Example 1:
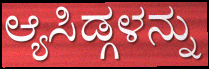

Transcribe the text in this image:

ಆ್ಯಸಿಡ್ಗಳನ್ನು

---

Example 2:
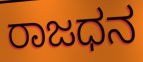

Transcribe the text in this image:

ರಾಜಧನ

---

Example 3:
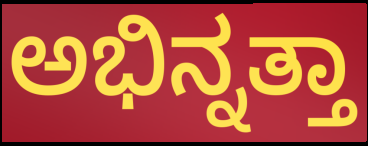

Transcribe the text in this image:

ಅಭಿನ್ನತ್ತಾ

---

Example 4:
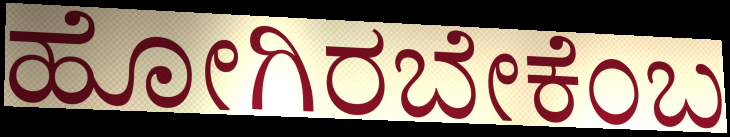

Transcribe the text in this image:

ಹೋಗಿರಬೇಕೆಂಬ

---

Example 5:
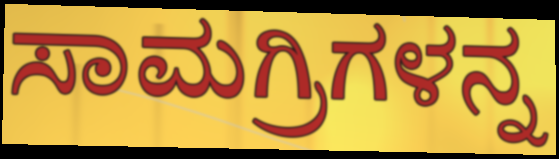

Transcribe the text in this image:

ಸಾಮಗ್ರಿಗಳನ್ನ